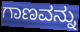
ಗಾಣವನ್ನು